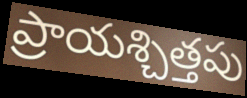
ప్రాయశ్చిత్తపు